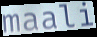
maali